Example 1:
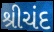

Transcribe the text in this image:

શ્રીચંદ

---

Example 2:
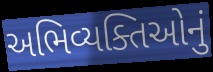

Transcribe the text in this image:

અભિવ્યક્તિઓનું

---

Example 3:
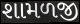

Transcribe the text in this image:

શામળજી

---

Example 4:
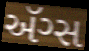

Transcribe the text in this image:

ઍગ્સ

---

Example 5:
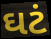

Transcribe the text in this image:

ઘટં